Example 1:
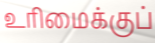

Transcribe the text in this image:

உரிமைக்குப்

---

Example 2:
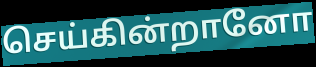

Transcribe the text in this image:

செய்கின்றானோ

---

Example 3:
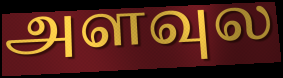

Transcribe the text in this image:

அளவுல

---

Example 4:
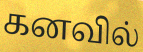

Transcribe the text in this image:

கனவில்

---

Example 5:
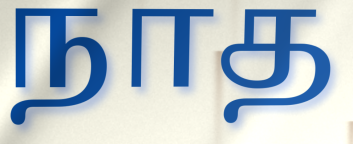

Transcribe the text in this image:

நாத